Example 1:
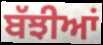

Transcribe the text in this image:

ਬੱਝੀਆਂ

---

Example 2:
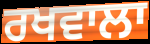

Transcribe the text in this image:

ਰਖਵਾਲਾ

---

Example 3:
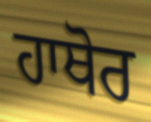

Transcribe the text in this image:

ਹਾਥੋਰ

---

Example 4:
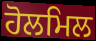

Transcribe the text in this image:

ਹੋਲਮਿਲ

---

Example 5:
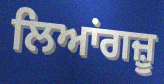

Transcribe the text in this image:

ਲਿਆਂਗਜ਼ੂ